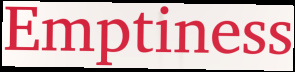
Emptiness